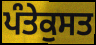
ਪੰਤੇਕੁਸਤ